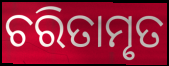
ଚରିତାମୃତ